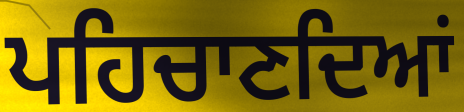
ਪਹਿਚਾਣਦਿਆਂ